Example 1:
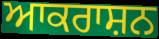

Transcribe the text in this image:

ਆਕਰਾਸ਼ਨ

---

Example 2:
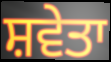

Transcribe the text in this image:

ਸ਼ਵੇਤਾ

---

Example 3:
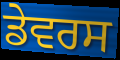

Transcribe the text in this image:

ਡੇਵਰਸ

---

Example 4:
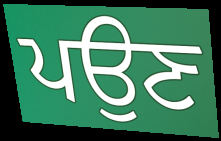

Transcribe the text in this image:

ਪਉਣ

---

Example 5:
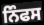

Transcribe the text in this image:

ਨਿੰਫਸ